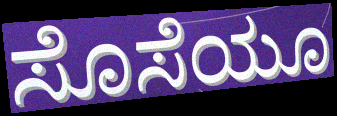
ಸೊಸೆಯೂ